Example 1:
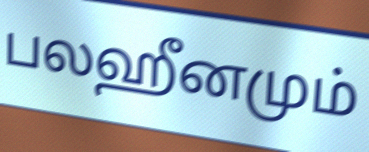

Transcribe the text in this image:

பலஹீனமும்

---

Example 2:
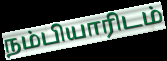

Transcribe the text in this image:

நம்பியாரிடம்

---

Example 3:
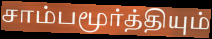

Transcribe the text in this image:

சாம்பமூர்த்தியும்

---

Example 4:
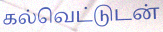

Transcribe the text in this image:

கல்வெட்டுடன்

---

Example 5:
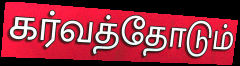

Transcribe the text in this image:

கர்வத்தோடும்